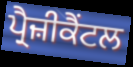
ਪ੍ਰੈਜ਼ੀਕੈਂਟਲ